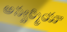
అన్వర్మియా